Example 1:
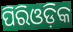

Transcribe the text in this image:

ପିରିଓଡ଼ିକ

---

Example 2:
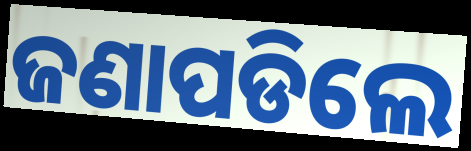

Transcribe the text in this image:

ଜଣାପଡିଲେ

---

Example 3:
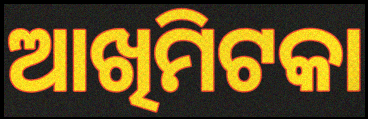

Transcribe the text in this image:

ଆଖିମିଟକା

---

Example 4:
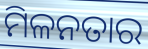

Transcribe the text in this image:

ମିଳନତାର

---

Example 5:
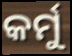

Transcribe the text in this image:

କର୍ମୁ